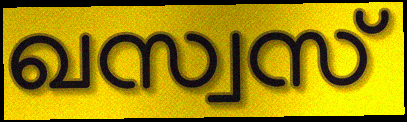
ഖസ്വസ്